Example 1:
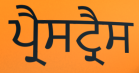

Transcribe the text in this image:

ਪ੍ਰੈਸਟ੍ਰੈਸ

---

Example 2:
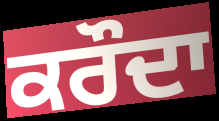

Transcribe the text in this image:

ਕਰੌਦਾ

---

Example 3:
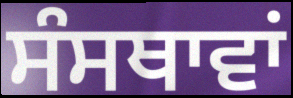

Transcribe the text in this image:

ਸੰਸਥਾਵਾਂ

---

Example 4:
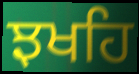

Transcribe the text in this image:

ਝਖਹਿ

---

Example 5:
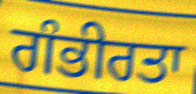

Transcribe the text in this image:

ਗੰਭੀਰਤਾ